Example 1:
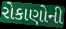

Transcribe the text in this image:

રોકાણોની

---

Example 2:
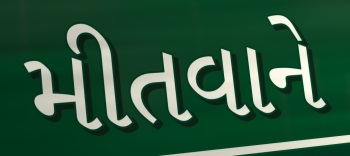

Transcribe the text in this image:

મીતવાને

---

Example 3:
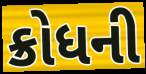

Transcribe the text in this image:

ક્રોધની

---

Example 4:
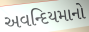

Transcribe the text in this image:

અવન્દિયમાનો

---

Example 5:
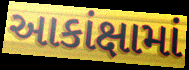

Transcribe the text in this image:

આકાંક્ષામાં